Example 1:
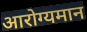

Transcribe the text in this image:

आरोग्यमान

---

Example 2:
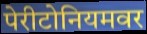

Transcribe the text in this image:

पेरीटोनियमवर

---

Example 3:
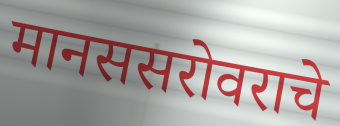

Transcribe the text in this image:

मानससरोवराचे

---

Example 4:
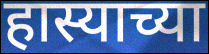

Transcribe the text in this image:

हास्याच्या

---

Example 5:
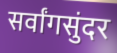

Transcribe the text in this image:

सर्वांगसुंदर